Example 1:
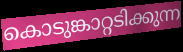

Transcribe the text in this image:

കൊടുങ്കാറ്റടിക്കുന്ന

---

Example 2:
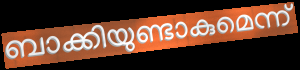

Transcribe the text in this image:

ബാക്കിയുണ്ടാകുമെന്ന്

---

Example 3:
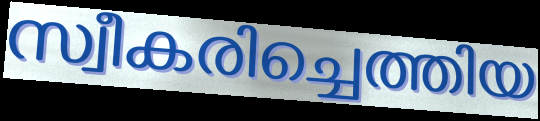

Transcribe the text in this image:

സ്വീകരിച്ചെത്തിയ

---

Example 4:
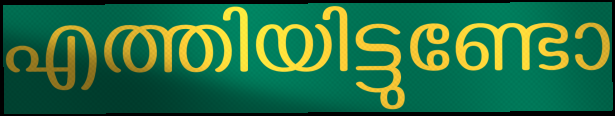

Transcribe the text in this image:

എത്തിയിട്ടുണ്ടോ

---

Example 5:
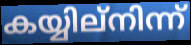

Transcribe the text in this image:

കയ്യില്നിന്ന്